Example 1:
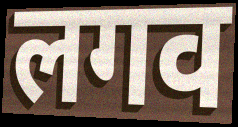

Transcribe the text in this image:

लगव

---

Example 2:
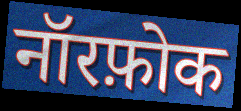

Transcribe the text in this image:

नॉरफ़ोक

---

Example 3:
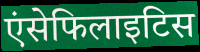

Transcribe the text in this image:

एंसेफिलाइटिस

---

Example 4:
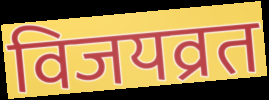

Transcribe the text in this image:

विजयव्रत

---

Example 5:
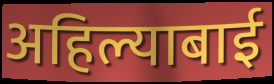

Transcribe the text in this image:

अहिल्याबाई